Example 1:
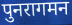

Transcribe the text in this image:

पुनरागमन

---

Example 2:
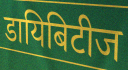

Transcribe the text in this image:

डायिबिटीज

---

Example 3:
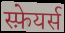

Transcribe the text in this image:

स्फ़ेयर्स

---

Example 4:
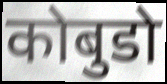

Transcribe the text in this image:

कोबुडो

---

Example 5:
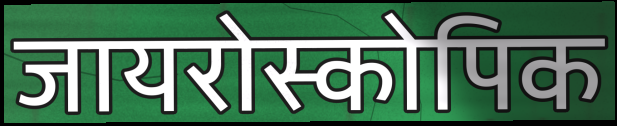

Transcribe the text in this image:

जायरोस्कोपिक